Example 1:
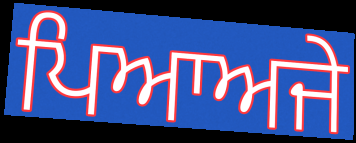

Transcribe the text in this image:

ਪਿਆਅਜੇ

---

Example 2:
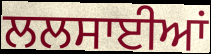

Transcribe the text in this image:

ਲਲਸਾਈਆਂ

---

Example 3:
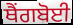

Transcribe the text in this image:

ਥੈਂਗਬੋਈ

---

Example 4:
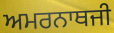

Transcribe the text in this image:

ਅਮਰਨਾਥਜੀ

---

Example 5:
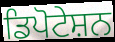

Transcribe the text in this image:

ਡਿਪੋਟੇਸ਼ਨ